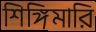
শিঙ্গিমারি